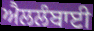
ਐਲਲੰਬਾਈ